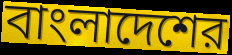
বাংলাদেশের